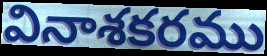
వినాశకరము